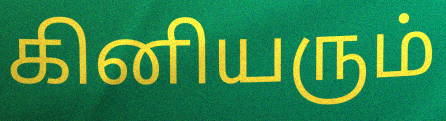
கினியரும்